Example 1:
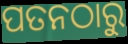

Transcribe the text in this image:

ପତନଠାରୁ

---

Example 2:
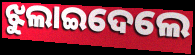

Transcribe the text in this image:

ଝୁଲାଇଦେଲେ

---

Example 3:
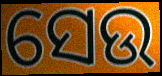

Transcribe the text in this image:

ସେଉ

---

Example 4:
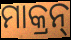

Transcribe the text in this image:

ମାକ୍ରନ୍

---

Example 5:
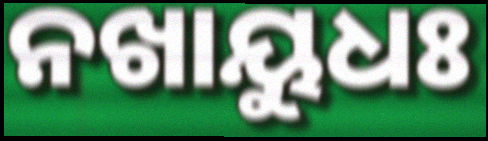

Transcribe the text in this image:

ନଖାୟୁଧଃ